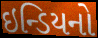
ઇન્ડિયનો